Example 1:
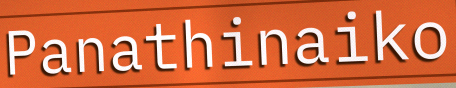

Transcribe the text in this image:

Panathinaiko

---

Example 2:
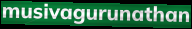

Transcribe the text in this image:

musivagurunathan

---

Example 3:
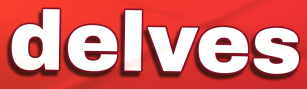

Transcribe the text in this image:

delves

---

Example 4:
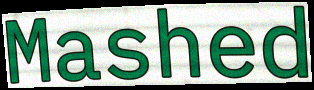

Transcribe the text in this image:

Mashed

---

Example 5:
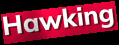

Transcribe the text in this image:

Hawking